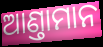
ଆଣ୍ତାମାନ